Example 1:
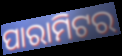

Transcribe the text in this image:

ପାରାମିଟର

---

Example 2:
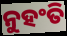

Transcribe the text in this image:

ନୁହଂତି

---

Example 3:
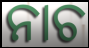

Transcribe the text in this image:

ନାଚ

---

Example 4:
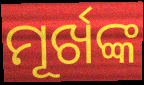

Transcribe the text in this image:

ମୂର୍ଖଙ୍କ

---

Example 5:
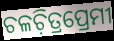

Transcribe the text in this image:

ଚଳଚ଼ିତ୍ରପ୍ରେମୀ